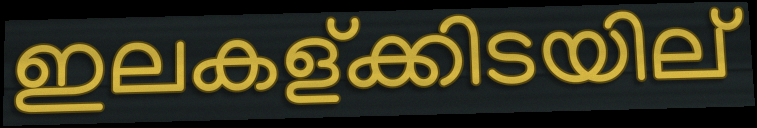
ഇലകള്ക്കിടയില്